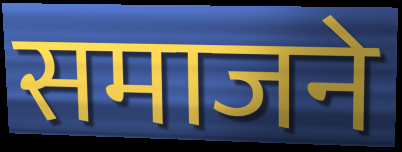
समाजने